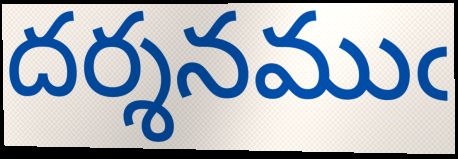
దర్శనముఁ